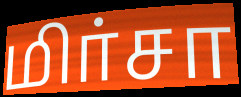
மிர்சா